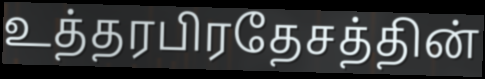
உத்தரபிரதேசத்தின்